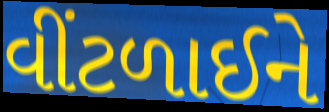
વીંટળાઈને